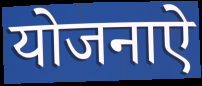
योजनाऐ